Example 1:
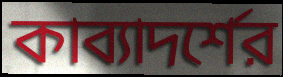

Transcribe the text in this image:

কাব্যাদর্শের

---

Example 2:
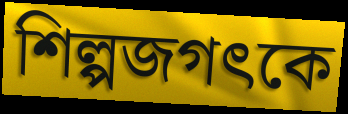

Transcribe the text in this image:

শিল্পজগৎকে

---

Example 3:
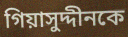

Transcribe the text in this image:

গিয়াসুদ্দীনকে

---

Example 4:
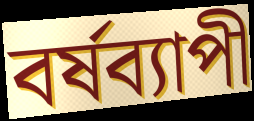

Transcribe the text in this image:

বর্ষব্যাপী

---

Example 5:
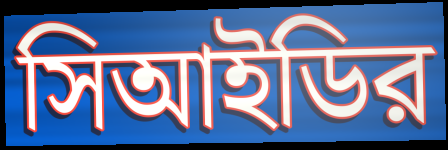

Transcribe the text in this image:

সিআইডির